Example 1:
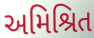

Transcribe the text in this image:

અમિશ્રિત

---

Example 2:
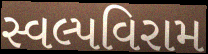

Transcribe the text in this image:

સ્વલ્પવિરામ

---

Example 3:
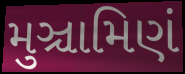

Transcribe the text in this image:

મુઞ્ચામિણં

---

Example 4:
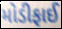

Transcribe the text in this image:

મોડીફાઈ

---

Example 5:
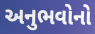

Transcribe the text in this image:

અનુભવોનો